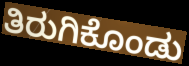
ತಿರುಗಿಕೊಂಡು